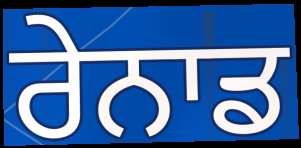
ਰੇਨਾਡ